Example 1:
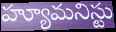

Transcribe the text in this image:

హ్యూమనిస్టు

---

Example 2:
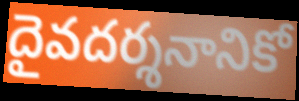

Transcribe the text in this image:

దైవదర్శనానికో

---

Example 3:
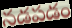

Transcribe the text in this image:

నడపడం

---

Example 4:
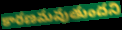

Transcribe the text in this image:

కారణమవుతుందని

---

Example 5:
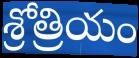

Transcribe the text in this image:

శ్రోత్రియం